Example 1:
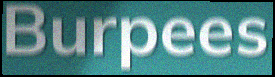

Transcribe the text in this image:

Burpees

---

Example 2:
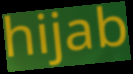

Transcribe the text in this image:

hijab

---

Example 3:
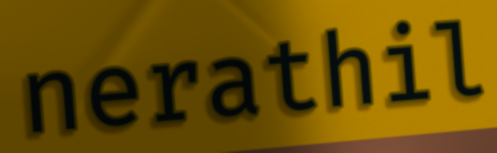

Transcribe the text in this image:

nerathil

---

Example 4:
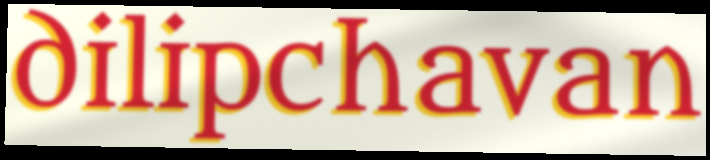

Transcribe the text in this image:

dilipchavan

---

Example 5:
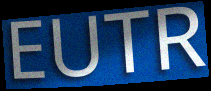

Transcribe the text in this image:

EUTR